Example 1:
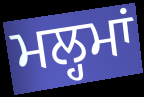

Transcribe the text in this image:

ਮਲ੍ਹਮਾਂ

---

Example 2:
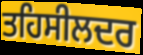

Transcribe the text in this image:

ਤਹਿਸੀਲਦਰ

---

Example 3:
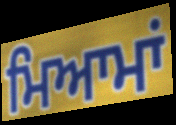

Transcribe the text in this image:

ਮਿਆਮਾਂ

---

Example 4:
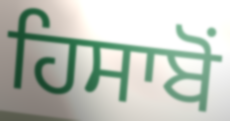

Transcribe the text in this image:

ਹਿਸਾਬੋਂ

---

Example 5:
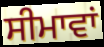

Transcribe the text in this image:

ਸੀਮਾਵਾਂ